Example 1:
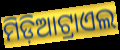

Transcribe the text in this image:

ମିଡ଼ିଆଟ୍ରାଏଲ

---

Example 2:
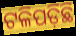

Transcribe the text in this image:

ଟଳିପଡ଼ିଛି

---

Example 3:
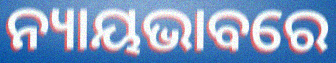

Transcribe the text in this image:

ନ୍ୟାୟଭାବରେ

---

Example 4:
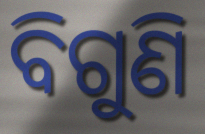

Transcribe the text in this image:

ବିଗୁଣି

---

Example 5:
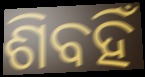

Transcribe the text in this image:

ଶିବହିଁ